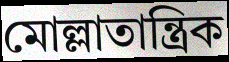
মোল্লাতান্ত্রিক